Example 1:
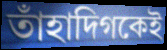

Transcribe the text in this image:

তাঁহাদিগকেই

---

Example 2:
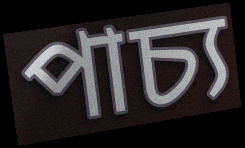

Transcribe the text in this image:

পাচ্য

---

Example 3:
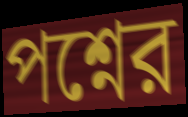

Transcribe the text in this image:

পশ্নের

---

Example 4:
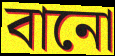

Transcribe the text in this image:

বানো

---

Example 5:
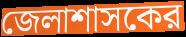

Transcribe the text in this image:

জেলাশাসকের